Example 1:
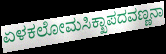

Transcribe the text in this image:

ಏಳಕಲೋಮಸಿಕ್ಖಾಪದವಣ್ಣನಾ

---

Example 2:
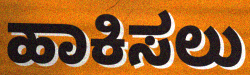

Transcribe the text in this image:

ಹಾಕಿಸಲು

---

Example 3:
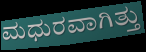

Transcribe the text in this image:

ಮಧುರವಾಗಿತ್ತು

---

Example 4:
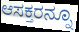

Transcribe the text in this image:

ಆಸಕ್ತರನ್ನೂ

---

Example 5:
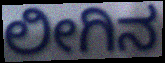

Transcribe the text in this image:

ಲೀಗಿನ